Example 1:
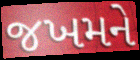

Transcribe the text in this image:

જખમને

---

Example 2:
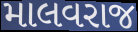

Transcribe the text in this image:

માલવરાજ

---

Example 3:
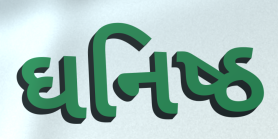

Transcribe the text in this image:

ઘનિષ્ઠ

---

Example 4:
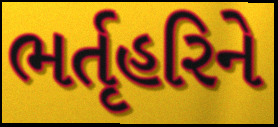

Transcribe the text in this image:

ભર્તૃહરિને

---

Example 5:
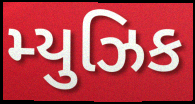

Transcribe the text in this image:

મ્યુઝિક